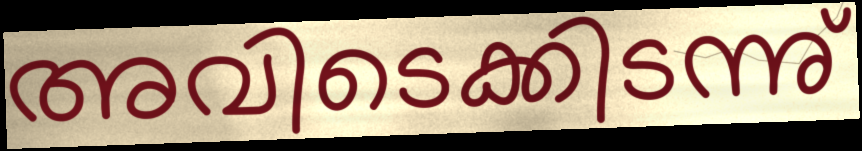
അവിടെക്കിടന്നു്